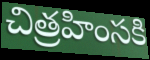
చిత్రహింసకి